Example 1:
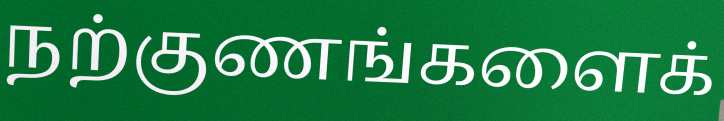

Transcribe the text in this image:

நற்குணங்களைக்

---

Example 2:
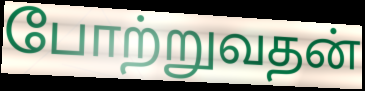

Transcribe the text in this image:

போற்றுவதன்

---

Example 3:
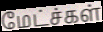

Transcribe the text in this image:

மேட்ச்கள்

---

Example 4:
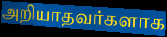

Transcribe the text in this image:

அறியாதவர்களாக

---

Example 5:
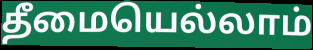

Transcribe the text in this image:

தீமையெல்லாம்